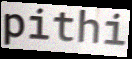
pithi